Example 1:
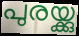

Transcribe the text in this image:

പുരയ്ക്കു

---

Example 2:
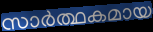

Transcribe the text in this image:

സാർത്ഥകമായ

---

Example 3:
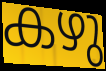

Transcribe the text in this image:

കഴു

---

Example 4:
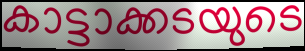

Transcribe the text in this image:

കാട്ടാക്കടയുടെ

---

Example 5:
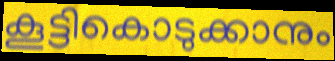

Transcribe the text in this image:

കൂട്ടികൊടുക്കാനും